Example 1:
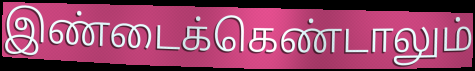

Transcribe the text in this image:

இண்டைக்கெண்டாலும்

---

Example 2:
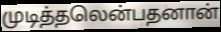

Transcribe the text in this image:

முடித்தலென்பதனான்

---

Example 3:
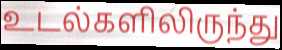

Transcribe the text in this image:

உடல்களிலிருந்து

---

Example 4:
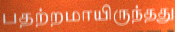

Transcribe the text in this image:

பதற்றமாயிருந்தது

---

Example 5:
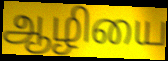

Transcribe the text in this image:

ஆழியை